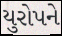
યુરોપને